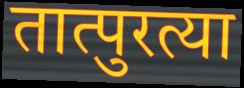
तात्पुरत्या